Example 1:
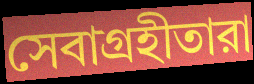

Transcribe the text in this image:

সেবাগ্রহীতারা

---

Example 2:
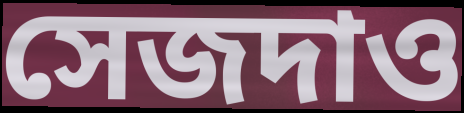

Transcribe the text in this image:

সেজদাও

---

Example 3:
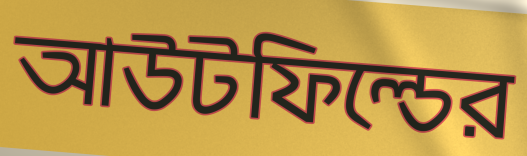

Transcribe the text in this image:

আউটফিল্ডের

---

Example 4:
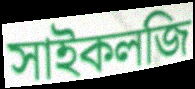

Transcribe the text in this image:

সাইকলজি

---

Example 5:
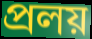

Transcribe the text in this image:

প্রলয়